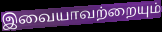
இவையாவற்றையும்